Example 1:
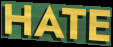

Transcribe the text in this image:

HATE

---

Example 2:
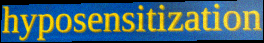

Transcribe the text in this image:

hyposensitization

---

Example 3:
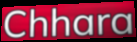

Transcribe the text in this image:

Chhara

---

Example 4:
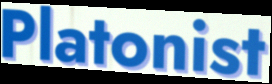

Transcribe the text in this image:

Platonist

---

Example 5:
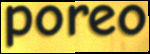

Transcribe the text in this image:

poreo